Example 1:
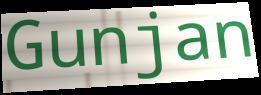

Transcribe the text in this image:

Gunjan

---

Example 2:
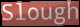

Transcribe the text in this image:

Slough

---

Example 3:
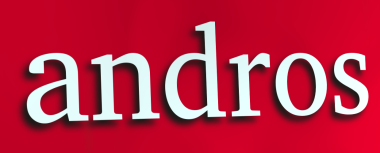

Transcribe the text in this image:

andros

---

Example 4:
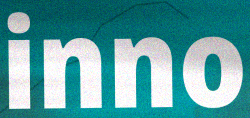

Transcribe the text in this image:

inno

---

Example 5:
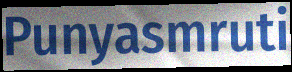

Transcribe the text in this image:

Punyasmruti